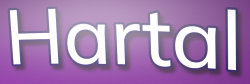
Hartal